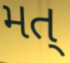
મત્